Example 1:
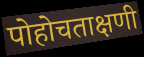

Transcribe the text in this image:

पोहोचताक्षणी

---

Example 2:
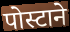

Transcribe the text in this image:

पोस्टाने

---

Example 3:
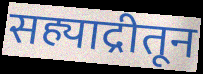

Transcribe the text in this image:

सह्याद्रीतून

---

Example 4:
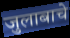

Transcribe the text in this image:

जुलाबाचे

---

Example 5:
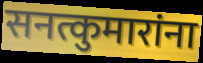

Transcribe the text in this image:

सनत्कुमारांना